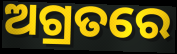
ଅଗ୍ରତରେ